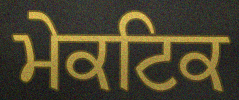
ਮੇਕਟਿਕ